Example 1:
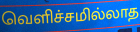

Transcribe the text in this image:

வெளிச்சமில்லாத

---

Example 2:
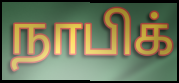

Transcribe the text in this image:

நாபிக்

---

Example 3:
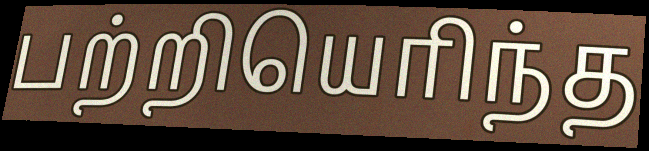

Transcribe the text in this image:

பற்றியெரிந்த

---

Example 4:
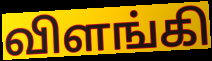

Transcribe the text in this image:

விளங்கி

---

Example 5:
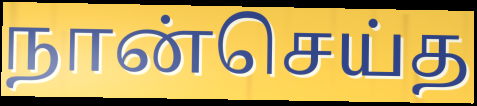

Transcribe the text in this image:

நான்செய்த